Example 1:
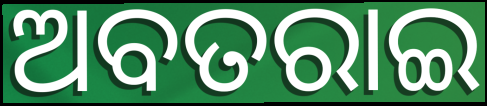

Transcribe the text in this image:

ଅବତରାଇ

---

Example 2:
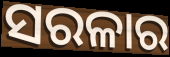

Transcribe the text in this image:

ସରଳାର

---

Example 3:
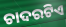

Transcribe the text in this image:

ଚାଦରଟିଏ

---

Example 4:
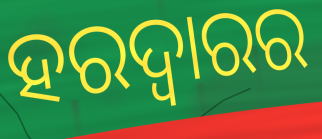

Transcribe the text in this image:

ହରଦ୍ୱାରର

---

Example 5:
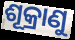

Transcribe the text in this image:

ଶୂକ୍ରାଣୁ